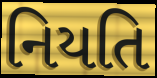
નિયતિ